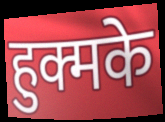
हुक्मके